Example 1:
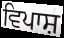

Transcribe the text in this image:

ਵਿਪਾਸ਼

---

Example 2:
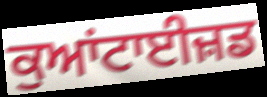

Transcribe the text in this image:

ਕੁਆਂਟਾਈਜ਼ਡ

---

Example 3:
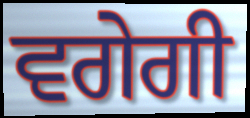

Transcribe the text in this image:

ਵਗੇਗੀ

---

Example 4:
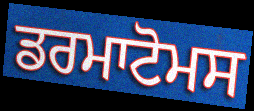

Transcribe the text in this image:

ਡਰਮਾਟੋਮਸ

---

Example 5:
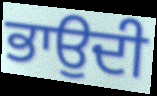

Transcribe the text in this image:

ਭਾਉਦੀ